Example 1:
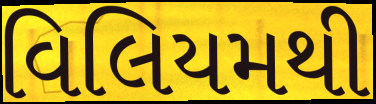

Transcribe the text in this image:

વિલિયમથી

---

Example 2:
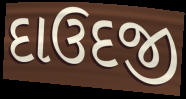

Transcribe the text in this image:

દાઉદજી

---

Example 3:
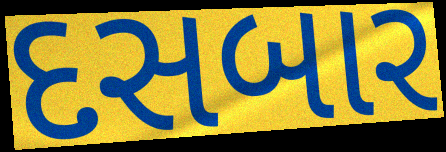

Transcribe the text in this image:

દસબાર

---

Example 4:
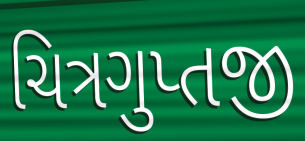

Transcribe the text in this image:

ચિત્રગુપ્તજી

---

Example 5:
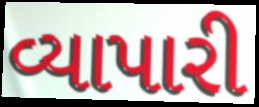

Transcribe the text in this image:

વ્યાપારી